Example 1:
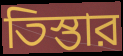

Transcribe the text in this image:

তিস্তার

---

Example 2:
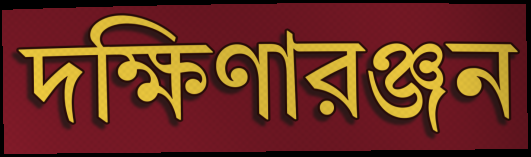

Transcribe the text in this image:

দক্ষিণারঞ্জন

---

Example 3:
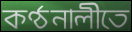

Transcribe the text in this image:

কণ্ঠনালীতে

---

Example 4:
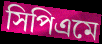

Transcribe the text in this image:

সিপিএমে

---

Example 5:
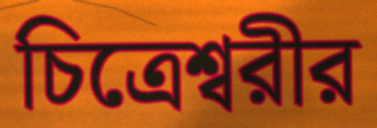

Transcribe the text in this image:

চিত্রেশ্বরীর